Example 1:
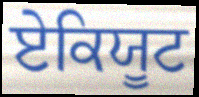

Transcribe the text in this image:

ਏਕਿਯੂਟ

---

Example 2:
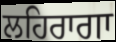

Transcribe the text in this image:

ਲਹਿਰਾਗਾ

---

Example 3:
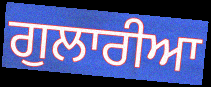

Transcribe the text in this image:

ਗੁਲਾਰੀਆ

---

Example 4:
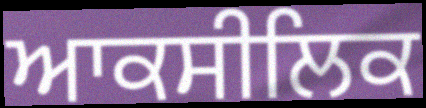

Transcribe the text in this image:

ਆਕਸੀਲਿਕ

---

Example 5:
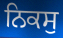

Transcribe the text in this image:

ਨਿਕਸੁ